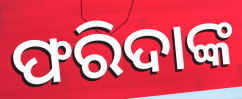
ଫରିଦାଙ୍କ